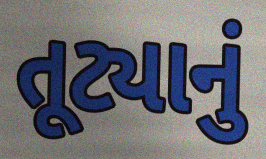
તૂટ્યાનું